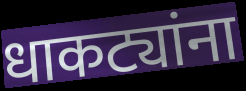
धाकट्यांना